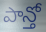
పాన్తో